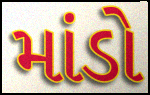
માંડો